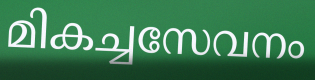
മികച്ചസേവനം